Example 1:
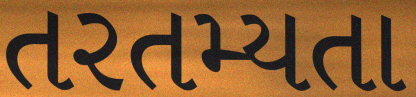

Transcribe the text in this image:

તરતમ્યતા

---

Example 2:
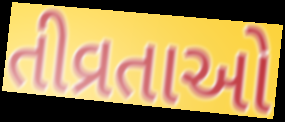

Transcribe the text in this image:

તીવ્રતાઓ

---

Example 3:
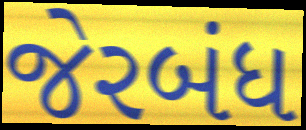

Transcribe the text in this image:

જેરબંધ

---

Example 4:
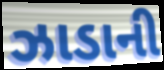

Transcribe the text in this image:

ઝાડાની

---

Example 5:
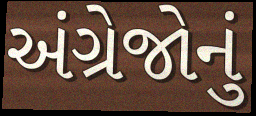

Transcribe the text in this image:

અંગ્રેજોનું